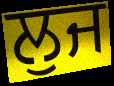
ਲੁਜ